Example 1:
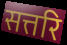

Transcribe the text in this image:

सत्तरि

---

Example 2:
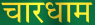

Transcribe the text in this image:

चारधाम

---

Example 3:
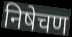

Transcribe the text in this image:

निषेचण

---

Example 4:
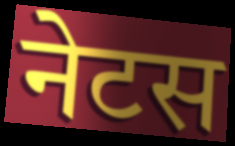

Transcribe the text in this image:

नेटस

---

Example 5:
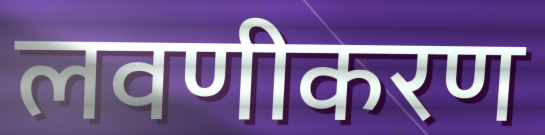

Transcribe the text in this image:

लवणीकरण